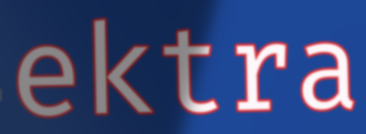
ektra